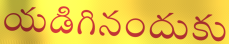
యడిగినందుకు